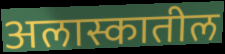
अलास्कातील